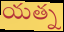
యత్న